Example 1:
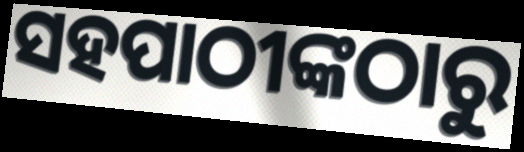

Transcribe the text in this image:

ସହପାଠୀଙ୍କଠାରୁ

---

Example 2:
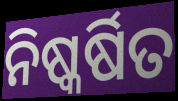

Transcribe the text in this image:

ନିଷ୍କର୍ଷିତ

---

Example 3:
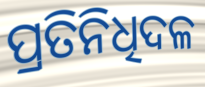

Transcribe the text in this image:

ପ୍ରତିନିଧିଦଳ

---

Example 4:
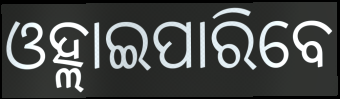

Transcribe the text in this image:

ଓହ୍ଲାଇପାରିବେ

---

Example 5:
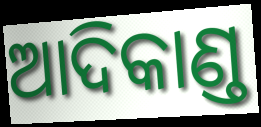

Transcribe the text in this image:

ଆଦିକାଣ୍ଡ